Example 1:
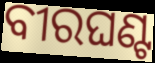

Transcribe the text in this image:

ବୀରଘଣ୍ଟ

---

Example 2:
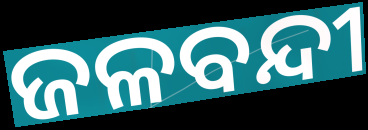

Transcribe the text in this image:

ଜଳବନ୍ଦୀ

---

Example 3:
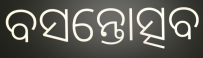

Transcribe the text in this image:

ବସନ୍ତୋତ୍ସବ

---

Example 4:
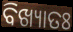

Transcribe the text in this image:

ବିଖ୍ୟାତଃ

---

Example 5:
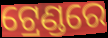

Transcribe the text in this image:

ଟ୍ରେଣ୍ଡରେ